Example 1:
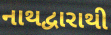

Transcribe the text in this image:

નાથદ્વારાથી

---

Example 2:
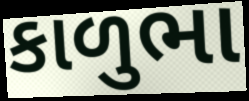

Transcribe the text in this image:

કાળુભા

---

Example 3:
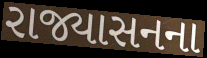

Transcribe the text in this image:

રાજ્યાસનના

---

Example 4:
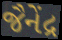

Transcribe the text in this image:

જૈનેંદ્ર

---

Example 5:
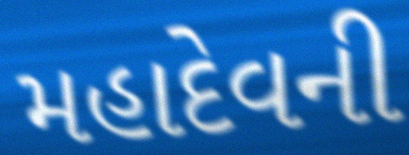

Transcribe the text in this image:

મહાદેવની